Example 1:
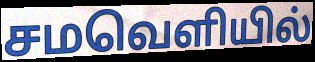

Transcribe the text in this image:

சமவெளியில்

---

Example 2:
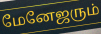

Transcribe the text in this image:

மேனேஜரும்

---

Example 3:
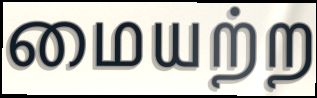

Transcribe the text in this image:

மையற்ற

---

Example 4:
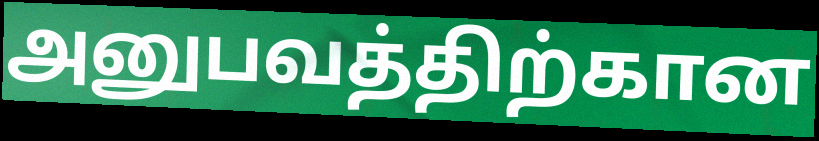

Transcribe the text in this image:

அனுபவத்திற்கான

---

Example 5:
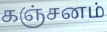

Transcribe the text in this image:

கஞ்சனம்